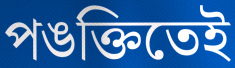
পঙক্তিতেই